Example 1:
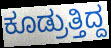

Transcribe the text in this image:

ಕೂಡ್ರುತ್ತಿದ್ದ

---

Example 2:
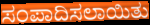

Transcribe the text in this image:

ಸಂಪಾದಿಸಲಾಯಿತು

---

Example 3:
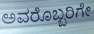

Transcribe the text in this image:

ಅವರೊಬ್ಬರಿಗೇ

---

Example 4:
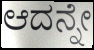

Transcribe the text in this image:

ಆದನ್ನೇ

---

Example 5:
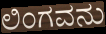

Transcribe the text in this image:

ಲಿಂಗವನು